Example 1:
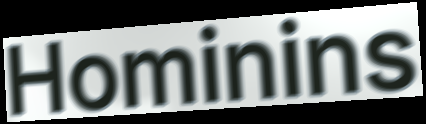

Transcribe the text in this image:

Hominins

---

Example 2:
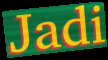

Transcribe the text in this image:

Jadi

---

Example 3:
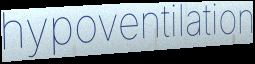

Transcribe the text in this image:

hypoventilation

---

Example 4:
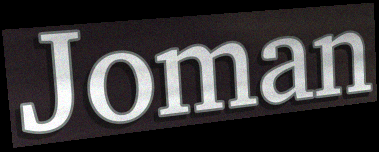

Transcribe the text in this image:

Joman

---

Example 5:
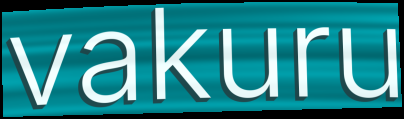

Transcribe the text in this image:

vakuru